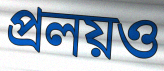
প্রলয়ও